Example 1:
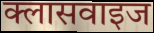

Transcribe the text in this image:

क्लासवाइज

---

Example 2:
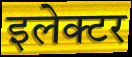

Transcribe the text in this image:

इलेक्टर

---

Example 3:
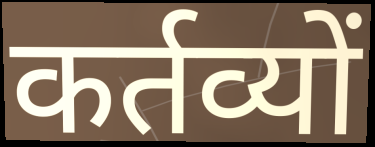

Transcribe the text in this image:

कर्तव्यों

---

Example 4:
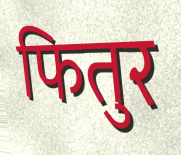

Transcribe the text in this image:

फितुर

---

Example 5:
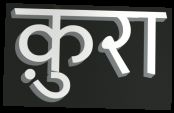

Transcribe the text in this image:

क़ुरा